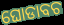
ଘୋଡାବଚ